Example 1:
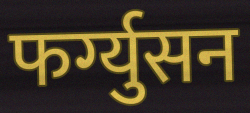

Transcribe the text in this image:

फर्ग्युसन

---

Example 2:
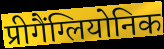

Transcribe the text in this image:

प्रीगैंग्लियोनिक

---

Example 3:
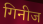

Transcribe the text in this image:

गिनीज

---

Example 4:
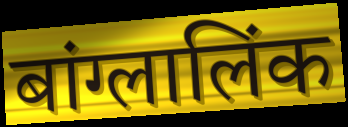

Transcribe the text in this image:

बांग्लालिंक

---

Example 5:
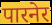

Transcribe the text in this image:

पारनेर